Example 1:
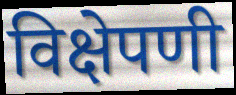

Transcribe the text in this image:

विक्षेपणी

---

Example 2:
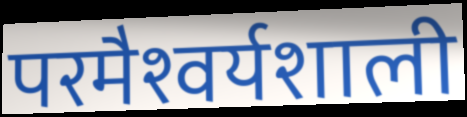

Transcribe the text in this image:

परमैश्वर्यशाली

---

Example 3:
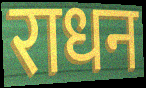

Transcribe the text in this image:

राधन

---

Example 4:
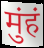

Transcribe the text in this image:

मुंहं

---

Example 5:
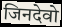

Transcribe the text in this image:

जिनदेवो